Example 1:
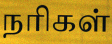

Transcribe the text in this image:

நரிகள்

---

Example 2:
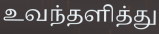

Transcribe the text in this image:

உவந்தளித்து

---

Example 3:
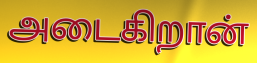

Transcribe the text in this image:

அடைகிறான்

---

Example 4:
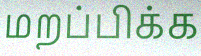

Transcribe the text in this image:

மறப்பிக்க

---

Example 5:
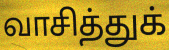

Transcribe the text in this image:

வாசித்துக்